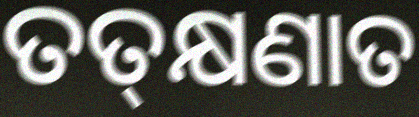
ତତ୍‍କ୍ଷଣାତ